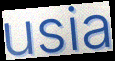
usia